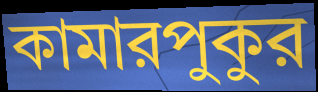
কামারপুকুর